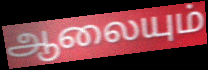
ஆலையும்